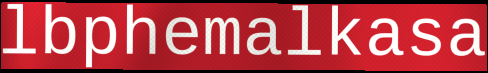
lbphemalkasa